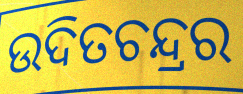
ଉଦିତଚନ୍ଦ୍ରର